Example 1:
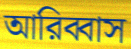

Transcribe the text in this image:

আরিব্বাস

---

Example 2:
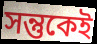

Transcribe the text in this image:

সন্তুকেই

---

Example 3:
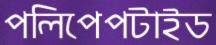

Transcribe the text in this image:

পলিপেপটাইড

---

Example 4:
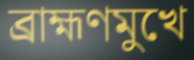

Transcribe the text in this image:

ব্রাহ্মণমুখে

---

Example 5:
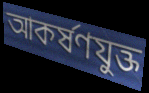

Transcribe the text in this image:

আকর্ষণযুক্ত